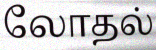
லோதல்